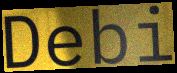
Debi